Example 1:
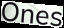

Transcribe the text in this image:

Ones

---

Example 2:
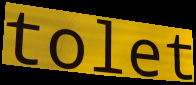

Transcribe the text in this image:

tolet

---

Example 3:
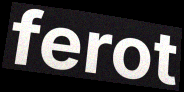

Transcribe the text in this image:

ferot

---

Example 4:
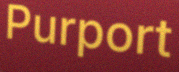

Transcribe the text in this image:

Purport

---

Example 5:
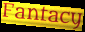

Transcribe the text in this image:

Fantacy